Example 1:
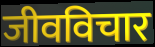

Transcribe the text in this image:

जीवविचार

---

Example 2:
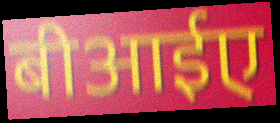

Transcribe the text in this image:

बीआईए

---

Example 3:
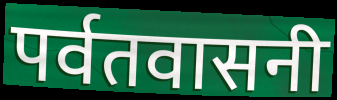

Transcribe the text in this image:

पर्वतवासनी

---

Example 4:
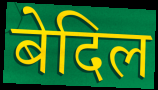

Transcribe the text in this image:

बेदिल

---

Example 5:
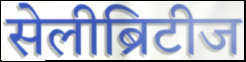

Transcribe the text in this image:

सेलीब्रिटीज